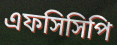
এফসিসিপি